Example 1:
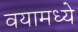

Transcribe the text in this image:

वयामध्ये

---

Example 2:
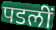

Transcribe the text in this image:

पडलीं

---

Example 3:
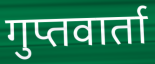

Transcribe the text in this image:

गुप्तवार्ता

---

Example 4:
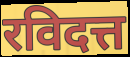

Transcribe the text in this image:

रविदत्त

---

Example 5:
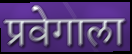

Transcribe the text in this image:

प्रवेगाला